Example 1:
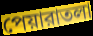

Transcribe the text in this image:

পেয়ারাতলা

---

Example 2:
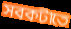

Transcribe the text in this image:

সবকটাতে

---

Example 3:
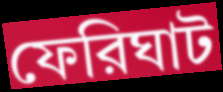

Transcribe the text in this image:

ফেরিঘাট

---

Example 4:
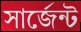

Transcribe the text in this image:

সার্জেন্ট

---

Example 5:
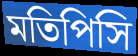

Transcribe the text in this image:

মতিপিসি